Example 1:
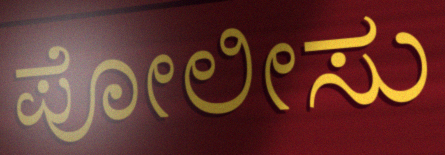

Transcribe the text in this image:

ಪೋಲೀಸು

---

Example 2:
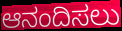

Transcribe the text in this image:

ಆನಂದಿಸಲು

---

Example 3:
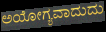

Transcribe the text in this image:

ಅಯೋಗ್ಯವಾದುದು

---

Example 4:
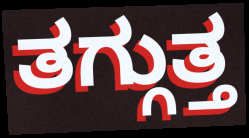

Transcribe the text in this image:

ತಗ್ಗುತ್ತ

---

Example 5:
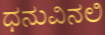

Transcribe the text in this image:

ಧನುವಿನಲಿ